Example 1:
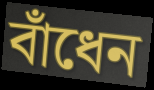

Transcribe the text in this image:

বাঁধেন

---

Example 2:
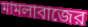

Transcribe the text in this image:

মামলাবাজের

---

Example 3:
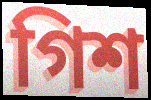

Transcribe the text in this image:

গিশ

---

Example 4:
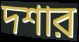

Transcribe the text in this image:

দশার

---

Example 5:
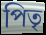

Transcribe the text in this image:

পিতৃ